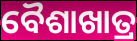
ବୈଶାଖାତ୍ର